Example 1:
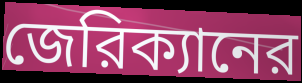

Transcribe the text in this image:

জেরিক্যানের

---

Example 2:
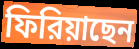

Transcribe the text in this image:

ফিরিয়াছেন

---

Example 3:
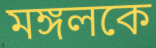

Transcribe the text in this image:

মঙ্গলকে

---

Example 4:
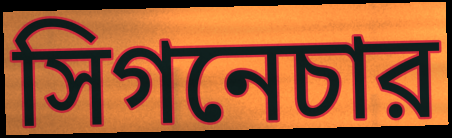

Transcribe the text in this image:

সিগনেচার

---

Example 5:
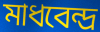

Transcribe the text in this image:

মাধবেন্দ্র